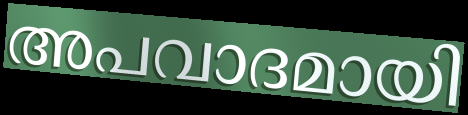
അപവാദമായി